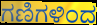
ಗಣಿಗಳಿಂದ